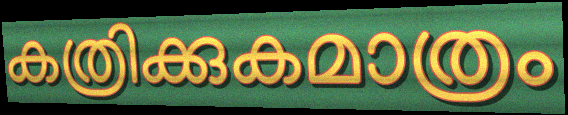
കത്രിക്കുകമാത്രം